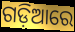
ଗଡ଼ିଆରେ